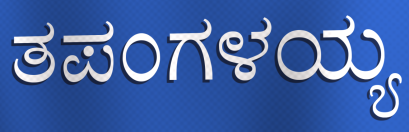
ತಪಂಗಳಯ್ಯ